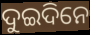
ଦୁଇଦିନେ